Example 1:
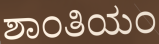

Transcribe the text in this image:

ಶಾಂತಿಯಂ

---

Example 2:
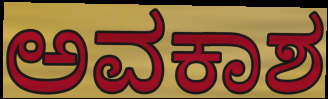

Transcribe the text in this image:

ಅವಕಾಶ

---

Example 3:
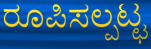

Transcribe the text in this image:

ರೂಪಿಸಲ್ಪಟ್ಟ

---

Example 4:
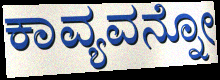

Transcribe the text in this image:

ಕಾವ್ಯವನ್ನೋ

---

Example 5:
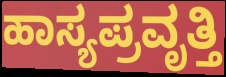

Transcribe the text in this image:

ಹಾಸ್ಯಪ್ರವೃತ್ತಿ